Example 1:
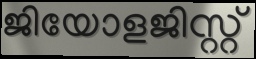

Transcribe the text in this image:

ജിയോളജിസ്റ്റ്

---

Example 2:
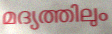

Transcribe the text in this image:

മദ്യത്തിലും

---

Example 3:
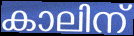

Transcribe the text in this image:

കാലിന്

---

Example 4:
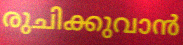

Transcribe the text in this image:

രുചിക്കുവാൻ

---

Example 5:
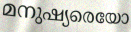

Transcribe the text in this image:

മനുഷ്യരെയോ